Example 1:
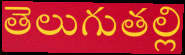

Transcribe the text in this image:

తెలుగుతల్లి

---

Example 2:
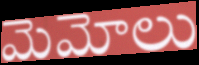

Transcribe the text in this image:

మెమోలు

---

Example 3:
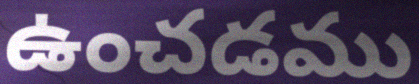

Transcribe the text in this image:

ఉంచడము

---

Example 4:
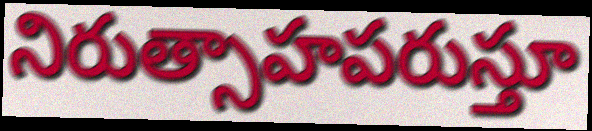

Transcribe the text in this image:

నిరుత్సాహపరుస్తూ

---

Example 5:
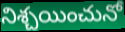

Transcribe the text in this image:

నిశ్చయించునో